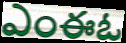
ఎంఈఓ